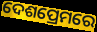
ଦେଶପ୍ରେମରେ